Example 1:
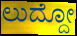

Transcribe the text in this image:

ಲುದ್ದೋ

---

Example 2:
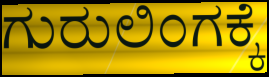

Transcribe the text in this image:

ಗುರುಲಿಂಗಕ್ಕೆ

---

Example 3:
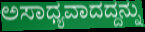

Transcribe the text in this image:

ಅಸಾಧ್ಯವಾದದ್ದನ್ನು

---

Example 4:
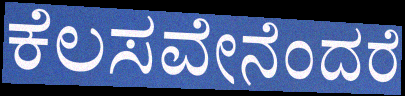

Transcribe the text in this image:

ಕೆಲಸವೇನೆಂದರೆ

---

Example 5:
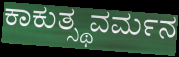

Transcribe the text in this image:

ಕಾಕುತ್ಸ್ಥವರ್ಮನ